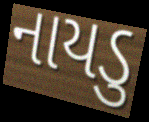
નાયડુ